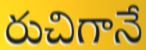
రుచిగానే